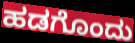
ಹಡಗೊಂದು